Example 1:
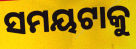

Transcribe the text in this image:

ସମୟଟାକୁ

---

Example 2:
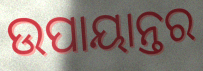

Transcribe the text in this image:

ଉପାୟାନ୍ତର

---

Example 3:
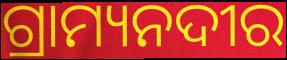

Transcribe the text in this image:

ଗ୍ରାମ୍ୟନଦୀର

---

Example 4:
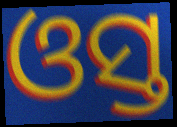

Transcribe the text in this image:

ଓସ୍ତ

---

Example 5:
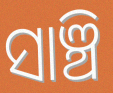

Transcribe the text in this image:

ସାଞ୍ଚି